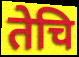
तेचि